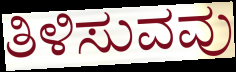
ತಿಳಿಸುವವು